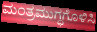
ಮಂತ್ರಮುಗ್ಧಗೊಳಿಸಿ